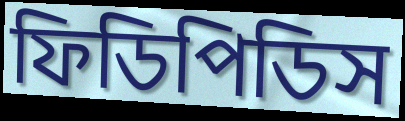
ফিডিপিডিস